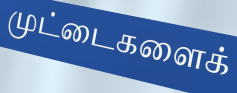
முட்டைகளைக்